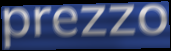
prezzo